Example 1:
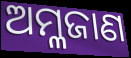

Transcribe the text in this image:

ଅମ୍ଳଜାଣ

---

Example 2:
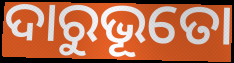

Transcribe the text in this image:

ଦାରୁଭୂତୋ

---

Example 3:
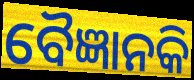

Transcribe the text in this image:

ବୈଜ୍ଞାନକି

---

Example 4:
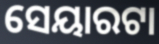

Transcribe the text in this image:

ସେୟାରଟା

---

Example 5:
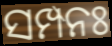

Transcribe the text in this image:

ସମ୍ପନଃ